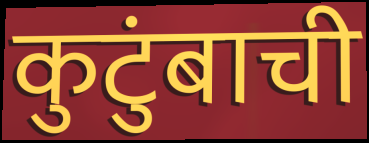
कुटुंबाची